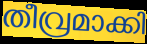
തീവ്രമാക്കി